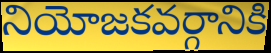
నియోజకవర్గానికి